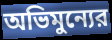
অভিমুন্যের